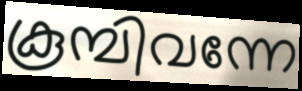
കൂമ്പിവന്നേ